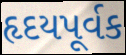
હૃદયપૂર્વક